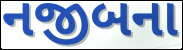
નજીબના